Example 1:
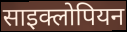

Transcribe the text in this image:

साइक्लोपियन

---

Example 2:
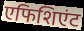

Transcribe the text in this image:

एफिशिएंट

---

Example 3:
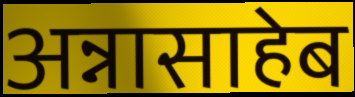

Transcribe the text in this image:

अन्नासाहेब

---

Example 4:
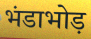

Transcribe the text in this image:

भंडाभोड़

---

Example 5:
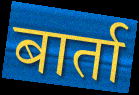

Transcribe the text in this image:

बार्ता